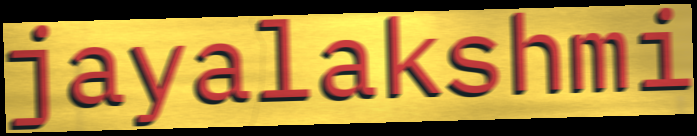
jayalakshmi